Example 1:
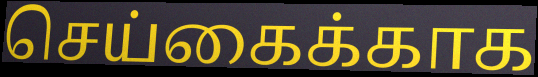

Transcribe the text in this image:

செய்கைக்காக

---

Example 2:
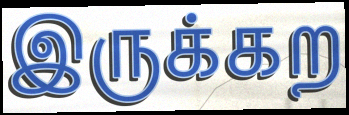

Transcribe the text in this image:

இருக்கற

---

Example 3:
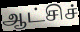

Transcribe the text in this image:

ஆட்சிச்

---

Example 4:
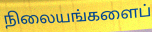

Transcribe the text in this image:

நிலையங்களைப்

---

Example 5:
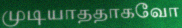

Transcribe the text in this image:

முடியாததாகவோ